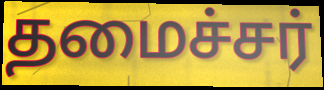
தமைச்சர்